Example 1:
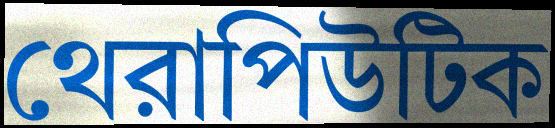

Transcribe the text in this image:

থেরাপিউটিক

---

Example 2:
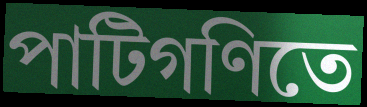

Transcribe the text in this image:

পাটিগণিতে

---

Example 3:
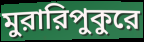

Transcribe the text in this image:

মুরারিপুকুরে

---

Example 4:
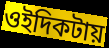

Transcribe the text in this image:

ওইদিকটায়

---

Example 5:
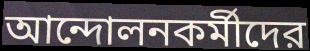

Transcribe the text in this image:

আন্দোলনকর্মীদের